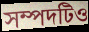
সম্পদটিও